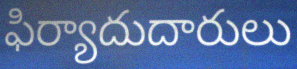
ఫిర్యాదుదారులు